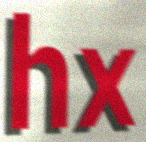
hx